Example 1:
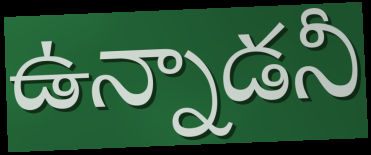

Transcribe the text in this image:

ఉన్నాడనీ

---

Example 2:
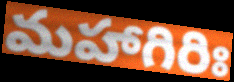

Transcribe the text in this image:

మహాగిరిః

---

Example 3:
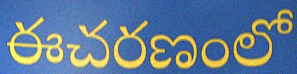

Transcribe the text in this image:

ఈచరణంలో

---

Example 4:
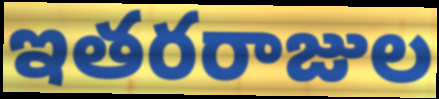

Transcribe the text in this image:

ఇతరరాజుల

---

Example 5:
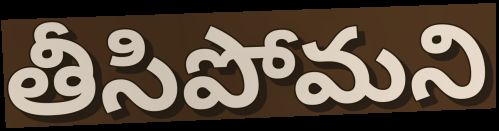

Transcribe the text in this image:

తీసిపోమని